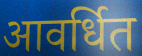
आवर्धित